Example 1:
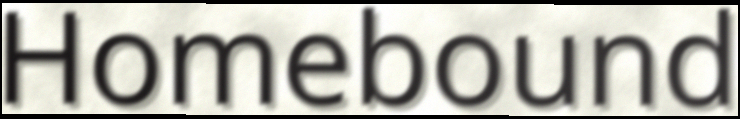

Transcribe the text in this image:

Homebound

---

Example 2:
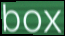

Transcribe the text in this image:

box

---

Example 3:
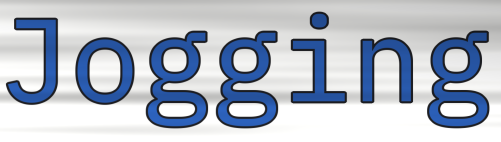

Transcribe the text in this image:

Jogging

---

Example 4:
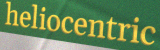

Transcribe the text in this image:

heliocentric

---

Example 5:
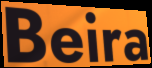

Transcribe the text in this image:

Beira